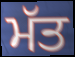
ਮੱਤ